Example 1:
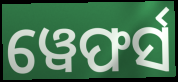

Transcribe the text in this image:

ୱେଫର୍ସ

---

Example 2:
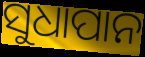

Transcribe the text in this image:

ସୁଧାପାନ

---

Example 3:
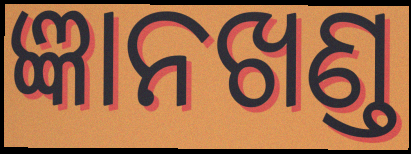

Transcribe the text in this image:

ଜ୍ଞାନଖଣ୍ଡ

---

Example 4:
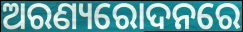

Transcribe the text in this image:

ଅରଣ୍ୟରୋଦନରେ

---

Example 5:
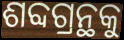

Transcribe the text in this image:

ଶବ୍ଦଗ୍ରନ୍ଥକୁ